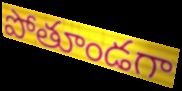
పోతూండగా